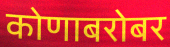
कोणाबरोबर